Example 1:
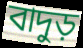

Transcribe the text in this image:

বাদুড়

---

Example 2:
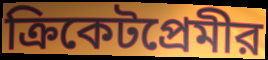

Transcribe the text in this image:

ক্রিকেটপ্রেমীর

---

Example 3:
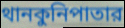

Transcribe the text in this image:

থানকুনিপাতার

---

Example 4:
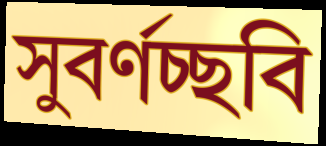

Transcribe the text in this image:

সুবর্ণচ্ছবি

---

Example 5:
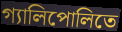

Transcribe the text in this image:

গ্যালিপোলিতে